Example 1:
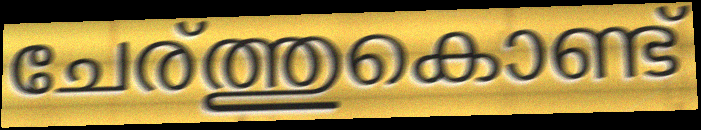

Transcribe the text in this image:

ചേര്ത്തുകൊണ്ട്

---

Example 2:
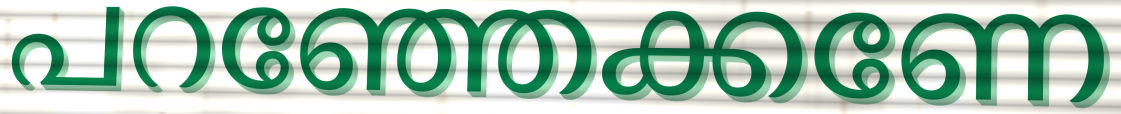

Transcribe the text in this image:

പറഞ്ഞേക്കണേ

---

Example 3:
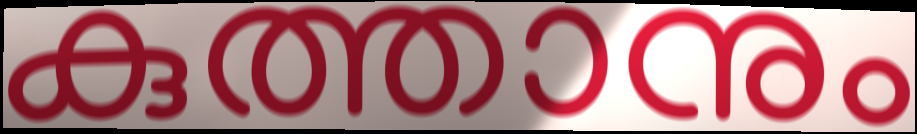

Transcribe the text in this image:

കുത്താനും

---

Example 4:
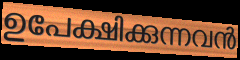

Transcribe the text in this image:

ഉപേക്ഷിക്കുന്നവൻ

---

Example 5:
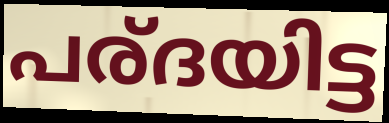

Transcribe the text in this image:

പര്ദയിട്ട